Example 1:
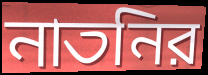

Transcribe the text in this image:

নাতনির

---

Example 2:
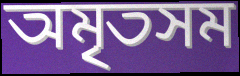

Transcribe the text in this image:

অমৃতসম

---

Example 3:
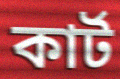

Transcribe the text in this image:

কার্ট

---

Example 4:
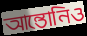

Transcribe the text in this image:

আন্তোনিও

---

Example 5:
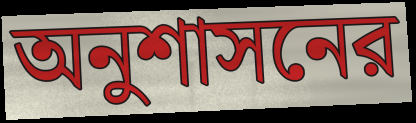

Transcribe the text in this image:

অনুশাসনের